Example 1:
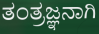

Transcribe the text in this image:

ತಂತ್ರಜ್ಞನಾಗಿ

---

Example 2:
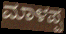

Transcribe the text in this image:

ಮಾಳಪ್ಪ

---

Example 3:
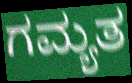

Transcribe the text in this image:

ಗಮ್ಯತ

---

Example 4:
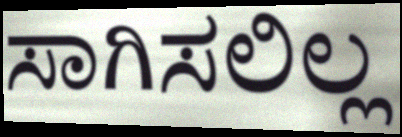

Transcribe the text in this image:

ಸಾಗಿಸಲಿಲ್ಲ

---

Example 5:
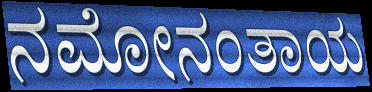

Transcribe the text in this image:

ನಮೋನಂತಾಯ